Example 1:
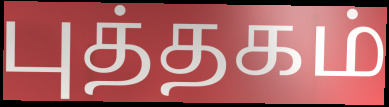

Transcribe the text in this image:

புத்தகம்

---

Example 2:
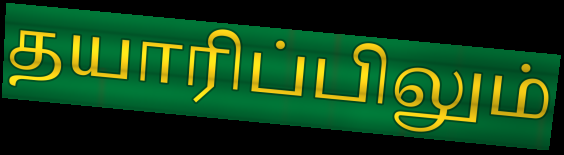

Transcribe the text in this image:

தயாரிப்பிலும்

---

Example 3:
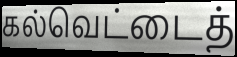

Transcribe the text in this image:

கல்வெட்டைத்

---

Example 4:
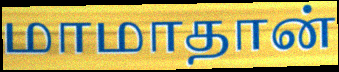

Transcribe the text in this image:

மாமாதான்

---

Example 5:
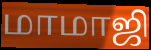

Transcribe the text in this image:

மாமாஜி